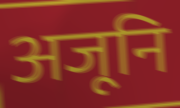
अजूनि